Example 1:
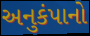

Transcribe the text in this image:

અનુકંપાનો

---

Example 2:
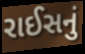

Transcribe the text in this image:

રાઈસનું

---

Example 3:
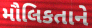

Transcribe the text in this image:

મૌલિકતાને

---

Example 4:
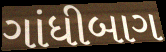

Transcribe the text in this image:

ગાંધીબાગ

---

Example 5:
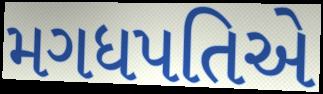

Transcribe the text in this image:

મગધપતિએ